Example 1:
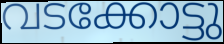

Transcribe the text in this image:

വടക്കോട്ടു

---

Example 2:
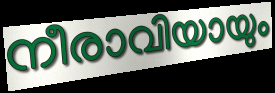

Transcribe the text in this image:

നീരാവിയായും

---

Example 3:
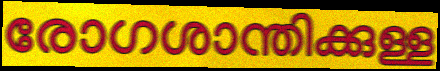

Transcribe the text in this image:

രോഗശാന്തിക്കുള്ള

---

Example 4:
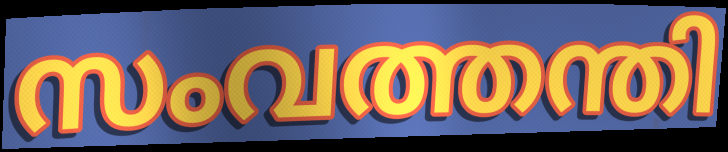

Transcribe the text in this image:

സംവത്തന്തി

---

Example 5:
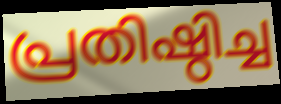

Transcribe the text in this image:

പ്രതിഷ്ഠിച്ച